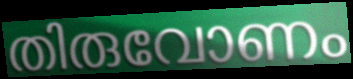
തിരുവോണം